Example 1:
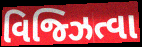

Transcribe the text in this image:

વિજ્ઝિત્વા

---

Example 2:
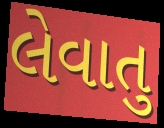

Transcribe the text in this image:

લેવાતુ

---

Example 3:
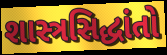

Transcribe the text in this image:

શાસ્ત્રસિદ્ધાંતો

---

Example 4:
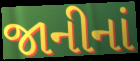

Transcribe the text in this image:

જાનીનાં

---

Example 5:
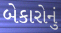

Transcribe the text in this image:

બેકારોનું